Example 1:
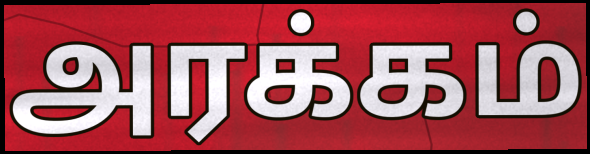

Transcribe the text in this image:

அரக்கம்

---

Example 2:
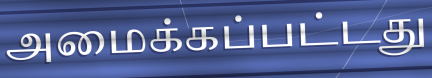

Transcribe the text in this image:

அமைக்கப்பட்டது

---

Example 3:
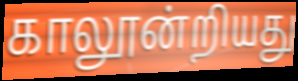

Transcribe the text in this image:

காலூன்றியது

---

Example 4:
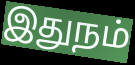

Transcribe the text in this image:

இதுநம்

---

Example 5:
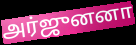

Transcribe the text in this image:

அர்ஜுனனா